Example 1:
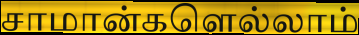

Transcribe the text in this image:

சாமான்களெல்லாம்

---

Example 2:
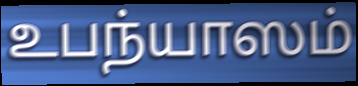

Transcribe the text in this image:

உபந்யாஸம்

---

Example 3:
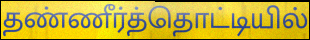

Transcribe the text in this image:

தண்ணீர்த்தொட்டியில்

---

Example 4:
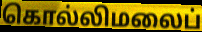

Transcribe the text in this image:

கொல்லிமலைப்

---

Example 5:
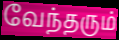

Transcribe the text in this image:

வேந்தரும்